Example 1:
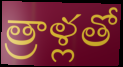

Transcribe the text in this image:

త్రాళ్లతో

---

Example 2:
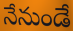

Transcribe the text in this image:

నేనుండే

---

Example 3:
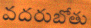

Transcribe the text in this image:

వదరుబోతు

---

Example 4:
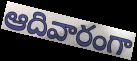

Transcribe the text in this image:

ఆదివారంగా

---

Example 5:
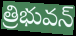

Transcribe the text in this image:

త్రిభువన్